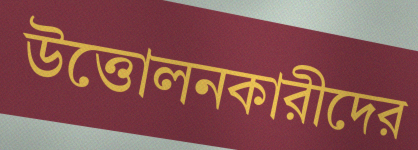
উত্তোলনকারীদের